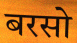
बरसो